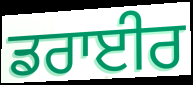
ਡਰਾਈਰ